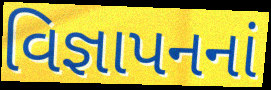
વિજ્ઞાપનનાં